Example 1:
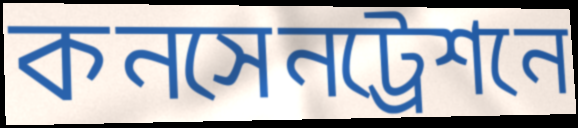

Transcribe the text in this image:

কনসেনট্রেশনে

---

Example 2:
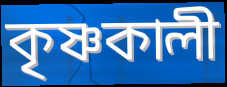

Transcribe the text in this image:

কৃষ্ণকালী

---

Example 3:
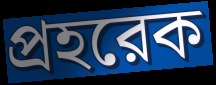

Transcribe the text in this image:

প্রহরেক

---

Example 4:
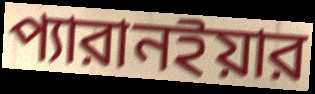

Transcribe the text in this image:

প্যারানইয়ার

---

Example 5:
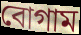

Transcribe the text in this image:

বোগাম